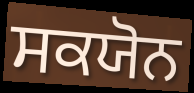
ਸਕਯੋਨ